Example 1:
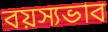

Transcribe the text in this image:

বয়স্যভাব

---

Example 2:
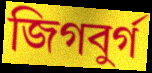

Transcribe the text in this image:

জিগবুর্গ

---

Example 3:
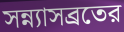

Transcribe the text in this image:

সন্ন্যাসব্রতের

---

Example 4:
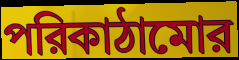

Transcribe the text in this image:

পরিকাঠামোর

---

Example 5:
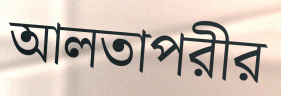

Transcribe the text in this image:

আলতাপরীর